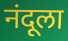
नंदूला